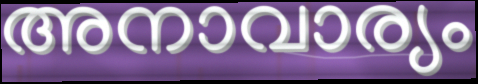
അനാവാര്യം